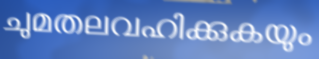
ചുമതലവഹിക്കുകയും